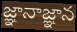
జ్ఞానాజ్ఞాన